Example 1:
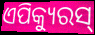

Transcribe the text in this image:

ଏପିକ୍ୟୁରସ୍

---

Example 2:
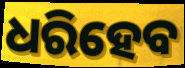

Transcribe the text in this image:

ଧରିହେବ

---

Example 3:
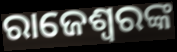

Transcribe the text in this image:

ରାଜେଶ୍ୱରଙ୍କ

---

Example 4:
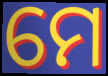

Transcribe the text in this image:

ମେ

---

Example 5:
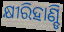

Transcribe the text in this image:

କ୍ଷୀରିହାଣ୍ଡି